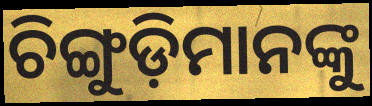
ଚିଙ୍ଗୁଡ଼ିମାନଙ୍କୁ